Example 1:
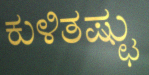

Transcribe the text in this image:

ಕುಳಿತಷ್ಟು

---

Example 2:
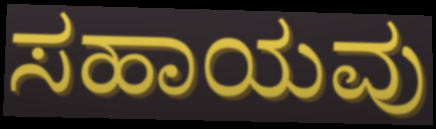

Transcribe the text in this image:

ಸಹಾಯವು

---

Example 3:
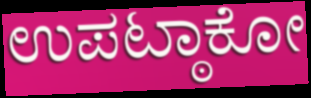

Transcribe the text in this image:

ಉಪಟ್ಠಾಕೋ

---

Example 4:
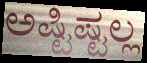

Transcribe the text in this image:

ಅಷ್ಟಿಷ್ಟಲ್ಲ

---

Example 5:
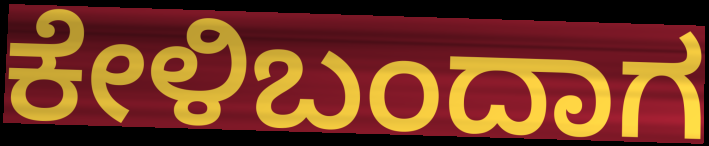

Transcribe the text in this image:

ಕೇಳಿಬಂದಾಗ